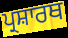
ਪ੍ਰਸ਼ਾਰਥ